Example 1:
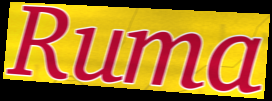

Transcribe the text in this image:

Ruma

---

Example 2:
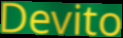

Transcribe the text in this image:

Devito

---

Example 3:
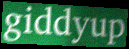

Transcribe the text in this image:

giddyup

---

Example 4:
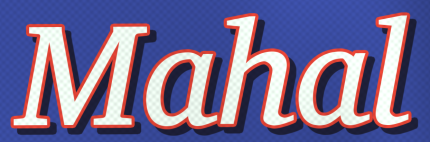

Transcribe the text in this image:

Mahal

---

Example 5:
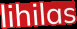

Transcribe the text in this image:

lihilas